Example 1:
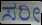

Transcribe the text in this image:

ಸರೀ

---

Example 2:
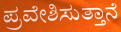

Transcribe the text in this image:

ಪ್ರವೇಶಿಸುತ್ತಾನೆ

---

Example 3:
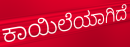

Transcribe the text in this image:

ಕಾಯಿಲೆಯಾಗಿದೆ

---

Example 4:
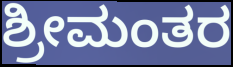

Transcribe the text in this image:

ಶ್ರೀಮಂತರ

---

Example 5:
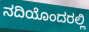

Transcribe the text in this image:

ನದಿಯೊಂದರಲ್ಲಿ